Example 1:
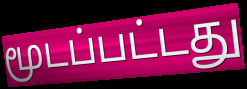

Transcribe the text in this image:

மூடப்பட்டது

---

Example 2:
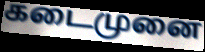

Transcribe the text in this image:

கடைமுனை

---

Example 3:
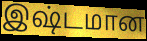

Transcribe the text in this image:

இஷ்டமான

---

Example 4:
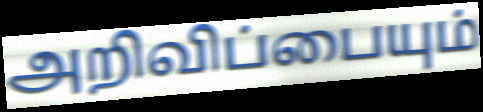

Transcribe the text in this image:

அறிவிப்பையும்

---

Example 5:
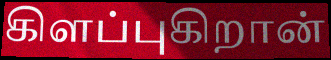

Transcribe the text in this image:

கிளப்புகிறான்